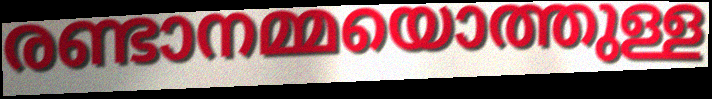
രണ്ടാനമ്മയൊത്തുള്ള